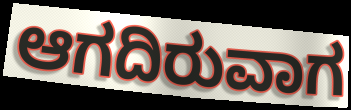
ಆಗದಿರುವಾಗ